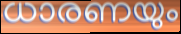
ധാരണയും